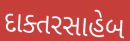
દાક્તરસાહેબ